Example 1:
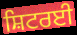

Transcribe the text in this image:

ਸ਼ਿਟਰਈ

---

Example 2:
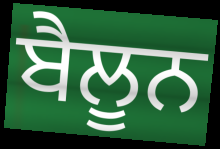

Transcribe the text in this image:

ਬੈਲੂਨ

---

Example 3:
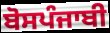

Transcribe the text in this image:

ਬੋਸਪੰਜਾਬੀ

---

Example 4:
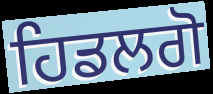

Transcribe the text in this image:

ਹਿਡਲਗੋ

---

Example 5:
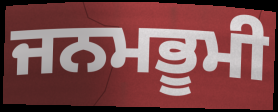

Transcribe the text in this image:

ਜਨਮਭੂਮੀ